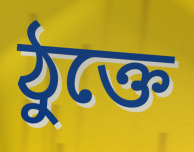
ঠুক্তে